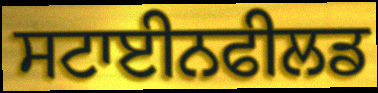
ਸਟਾਈਨਫੀਲਡ